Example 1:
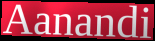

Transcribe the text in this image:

Aanandi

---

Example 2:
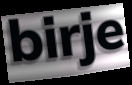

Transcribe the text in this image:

birje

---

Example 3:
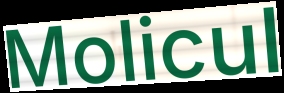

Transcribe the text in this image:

Molicul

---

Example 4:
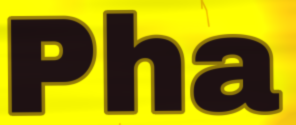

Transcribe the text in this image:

Pha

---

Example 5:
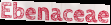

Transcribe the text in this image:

Ebenaceae